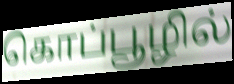
கொப்பூழில்